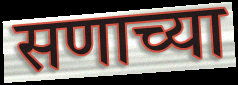
सणाच्या